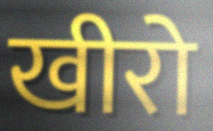
खीरो